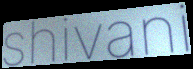
shivani